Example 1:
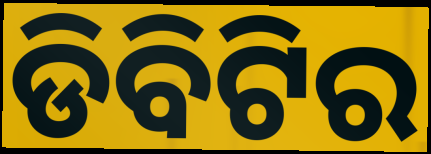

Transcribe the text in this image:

ଡିବିଟିର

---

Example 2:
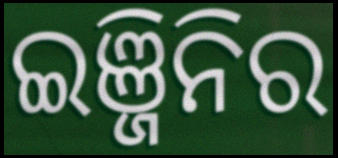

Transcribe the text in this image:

ଇଞ୍ଜିନିର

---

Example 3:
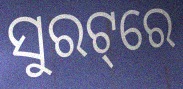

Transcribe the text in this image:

ସୁରଟ୍‌ରେ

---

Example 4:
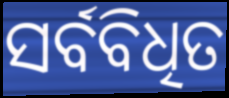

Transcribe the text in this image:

ସର୍ବବିଧିତ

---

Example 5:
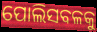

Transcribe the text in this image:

ପୋଲିସବଳକୁ